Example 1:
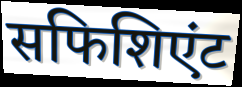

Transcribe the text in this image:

सफिशिएंट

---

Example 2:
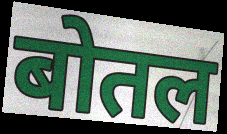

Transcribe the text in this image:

बोतल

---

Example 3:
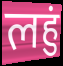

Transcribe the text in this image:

लहुं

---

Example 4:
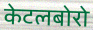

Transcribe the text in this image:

केटलबोरो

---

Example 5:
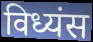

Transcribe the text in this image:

विध्यंस